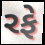
રફે